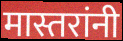
मास्तरांनी